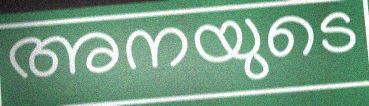
അനയുടെ